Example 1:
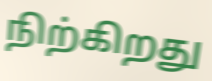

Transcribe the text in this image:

நிற்கிறது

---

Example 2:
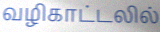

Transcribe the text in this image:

வழிகாட்டலில்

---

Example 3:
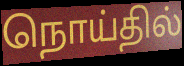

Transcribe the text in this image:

நொய்தில்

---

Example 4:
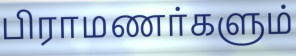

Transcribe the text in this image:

பிராமணர்களும்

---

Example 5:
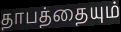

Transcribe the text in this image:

தாபத்தையும்